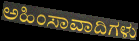
ಅಹಿಂಸಾವಾದಿಗಳು